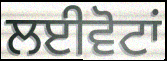
ਲਈਵੋਟਾਂ